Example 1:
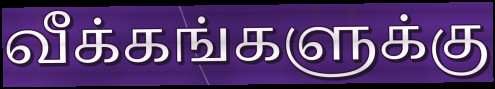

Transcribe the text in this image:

வீக்கங்களுக்கு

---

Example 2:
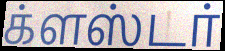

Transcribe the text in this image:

க்ளஸ்டர்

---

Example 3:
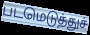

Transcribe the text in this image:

படமெடுத்துச்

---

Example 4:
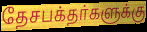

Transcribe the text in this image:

தேசபக்தர்களுக்கு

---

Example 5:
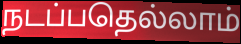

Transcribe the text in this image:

நடப்பதெல்லாம்